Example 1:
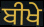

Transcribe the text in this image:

ਬੀਖੇ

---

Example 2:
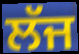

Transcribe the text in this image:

ਲੱਜ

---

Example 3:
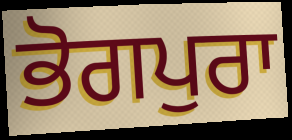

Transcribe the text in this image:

ਭੋਗਪੁਰਾ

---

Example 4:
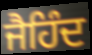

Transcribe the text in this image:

ਜੈਹਿੰਦ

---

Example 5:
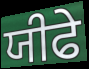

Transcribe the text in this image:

ਯੀਫੇ